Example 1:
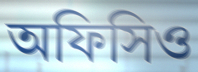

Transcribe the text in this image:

অফিসিও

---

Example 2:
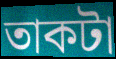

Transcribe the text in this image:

তাকটা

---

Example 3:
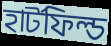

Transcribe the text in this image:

হার্টফিল্ড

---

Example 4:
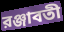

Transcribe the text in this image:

রঞ্জাবতী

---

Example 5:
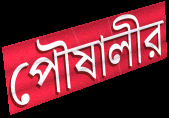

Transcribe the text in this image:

পৌষালীর